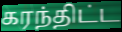
கரந்திட்ட